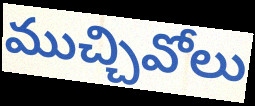
ముచ్చివోలు